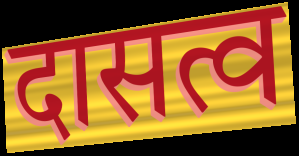
दासत्व